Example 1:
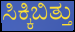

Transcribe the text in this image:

ಸಿಕ್ಕಿಬಿತ್ತು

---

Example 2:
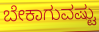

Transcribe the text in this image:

ಬೇಕಾಗುವಷ್ಟು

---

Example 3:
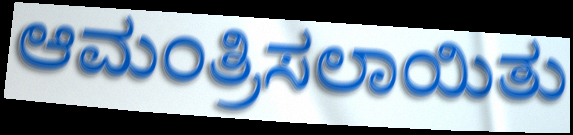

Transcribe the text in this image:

ಆಮಂತ್ರಿಸಲಾಯಿತು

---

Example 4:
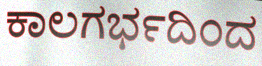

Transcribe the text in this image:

ಕಾಲಗರ್ಭದಿಂದ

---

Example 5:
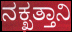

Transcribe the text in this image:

ನಕ್ಖತ್ತಾನಿ